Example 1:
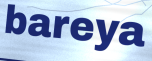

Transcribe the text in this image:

bareya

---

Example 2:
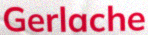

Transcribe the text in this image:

Gerlache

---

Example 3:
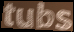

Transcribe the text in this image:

tubs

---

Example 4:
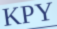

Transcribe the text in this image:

KPY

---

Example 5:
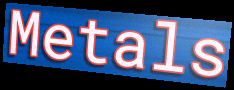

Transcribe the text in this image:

Metals